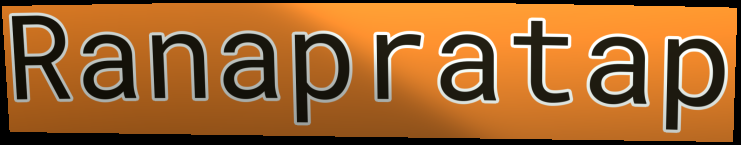
Ranapratap